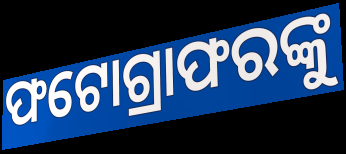
ଫଟୋଗ୍ରାଫରଙ୍କୁ